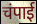
चंपाई